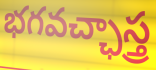
భగవచ్ఛాస్త్ర